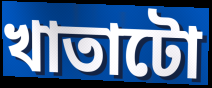
খাতাটো